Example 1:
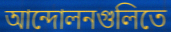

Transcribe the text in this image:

আন্দোলনগুলিতে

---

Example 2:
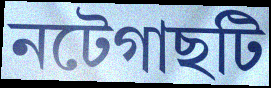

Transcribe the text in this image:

নটেগাছটি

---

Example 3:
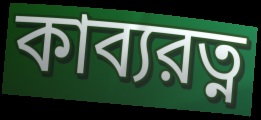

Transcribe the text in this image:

কাব্যরত্ন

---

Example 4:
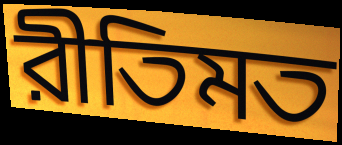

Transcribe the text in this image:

রীতিমত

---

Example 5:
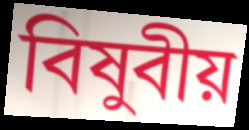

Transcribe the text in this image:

বিষুবীয়